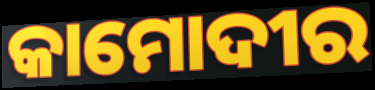
କାମୋଦୀର